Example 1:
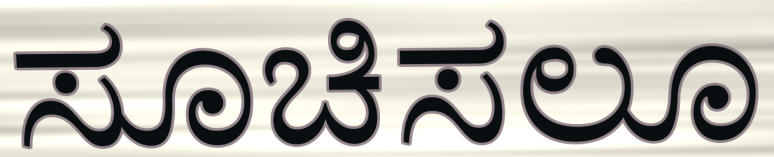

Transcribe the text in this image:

ಸೂಚಿಸಲೂ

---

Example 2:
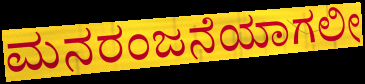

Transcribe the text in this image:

ಮನರಂಜನೆಯಾಗಲೀ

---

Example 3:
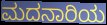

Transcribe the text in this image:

ಮದನಾರಿಯ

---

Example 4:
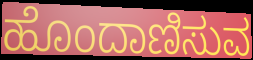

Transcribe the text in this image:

ಹೊಂದಾಣಿಸುವ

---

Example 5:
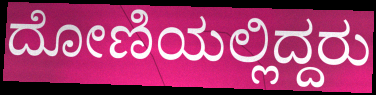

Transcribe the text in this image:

ದೋಣಿಯಲ್ಲಿದ್ದರು